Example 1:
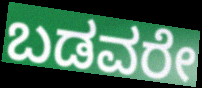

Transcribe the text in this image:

ಬಡವರೇ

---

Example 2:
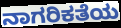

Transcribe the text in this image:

ನಾಗರಿಕತೆಯ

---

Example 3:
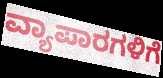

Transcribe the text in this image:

ವ್ಯಾಪಾರಗಳಿಗೆ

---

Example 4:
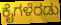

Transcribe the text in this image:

ಕೈಗಳೆರಡು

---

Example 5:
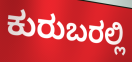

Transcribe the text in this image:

ಕುರುಬರಲ್ಲಿ